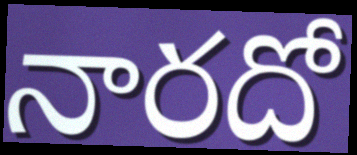
నారదో